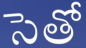
సెతో